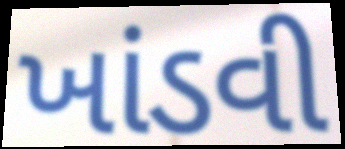
ખાંડવી